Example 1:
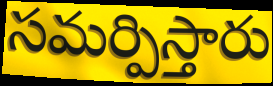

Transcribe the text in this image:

సమర్పిస్తారు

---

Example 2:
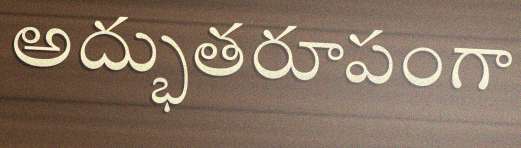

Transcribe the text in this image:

అద్భుతరూపంగా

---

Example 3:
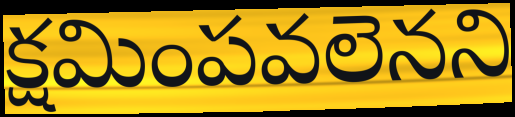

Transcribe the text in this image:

క్షమింపవలెనని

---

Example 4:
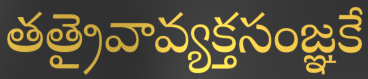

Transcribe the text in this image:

తత్రైవావ్యక్తసంజ్ఞకే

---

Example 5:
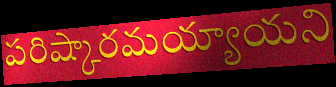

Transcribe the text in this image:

పరిష్కారమయ్యాయని